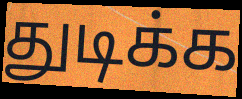
துடிக்க